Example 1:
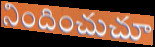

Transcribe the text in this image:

నిందించుచూ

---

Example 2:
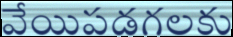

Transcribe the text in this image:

వేయిపడగలకు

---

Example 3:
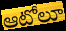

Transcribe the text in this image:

ఆటోలూ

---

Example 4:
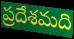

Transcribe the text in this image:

ప్రదేశమది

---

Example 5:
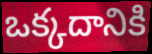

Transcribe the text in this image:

ఒక్కదానికి